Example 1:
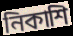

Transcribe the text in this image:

নিকাশি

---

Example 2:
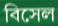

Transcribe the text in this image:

বিসেল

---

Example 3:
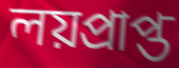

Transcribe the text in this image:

লয়প্রাপ্ত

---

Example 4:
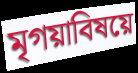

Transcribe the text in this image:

মৃগয়াবিষয়ে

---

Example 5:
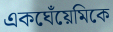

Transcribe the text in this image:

একঘেঁয়েমিকে